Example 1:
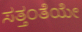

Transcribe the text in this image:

ಸತ್ತಂತೆಯೇ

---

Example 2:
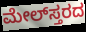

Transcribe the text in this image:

ಮೇಲ್‌ಸ್ತರದ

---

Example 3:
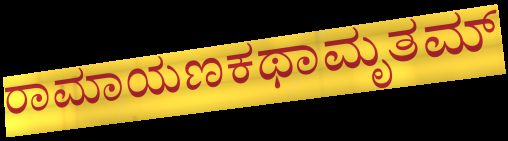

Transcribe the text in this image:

ರಾಮಾಯಣಕಥಾಮೃತಮ್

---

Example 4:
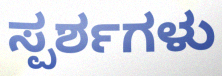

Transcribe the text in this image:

ಸ್ಪರ್ಶಗಳು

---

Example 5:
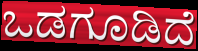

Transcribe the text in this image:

ಒಡಗೂಡಿದೆ